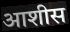
आशीस